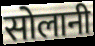
सोलानी